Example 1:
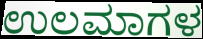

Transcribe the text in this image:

ಉಲಮಾಗಳ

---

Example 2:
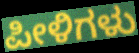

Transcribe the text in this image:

ಪೀಳಿಗಳು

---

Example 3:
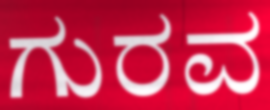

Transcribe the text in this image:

ಗುರವ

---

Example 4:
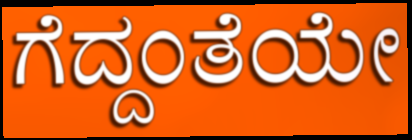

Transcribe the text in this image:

ಗೆದ್ದಂತೆಯೇ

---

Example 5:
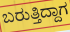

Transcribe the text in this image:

ಬರುತ್ತಿದ್ದಾಗ